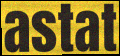
astat